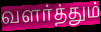
வளர்த்தும்